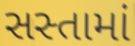
સસ્તામાં